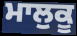
ਮਾਲੁਕੂ